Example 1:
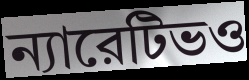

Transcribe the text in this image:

ন্যারেটিভও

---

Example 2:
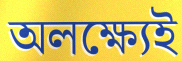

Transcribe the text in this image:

অলক্ষ্যেই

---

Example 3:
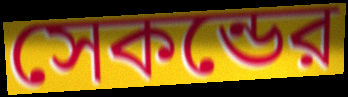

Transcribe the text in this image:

সেকন্ডের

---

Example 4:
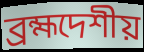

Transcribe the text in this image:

ব্রহ্মদেশীয়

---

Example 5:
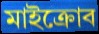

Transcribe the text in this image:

মাইক্রোব